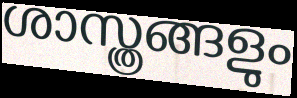
ശാസ്ത്രങ്ങളും